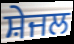
ਸ਼ੇਜਲ